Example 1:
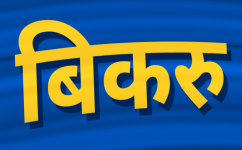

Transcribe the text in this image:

बिकरु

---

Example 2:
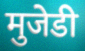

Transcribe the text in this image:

मुजेडी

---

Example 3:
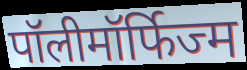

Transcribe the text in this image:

पॉलीमॉर्फिज्म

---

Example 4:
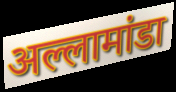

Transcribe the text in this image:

अल्लामांडा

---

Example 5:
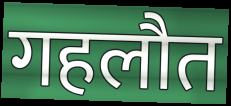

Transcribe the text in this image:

गहलौत